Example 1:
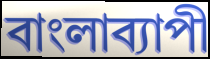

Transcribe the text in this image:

বাংলাব্যাপী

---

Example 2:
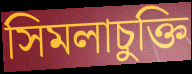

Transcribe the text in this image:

সিমলাচুক্তি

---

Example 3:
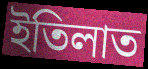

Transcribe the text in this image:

ইতিলাত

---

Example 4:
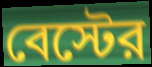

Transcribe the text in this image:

বেস্টের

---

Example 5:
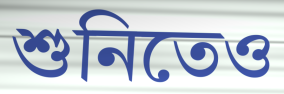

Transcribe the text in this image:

শুনিতেও